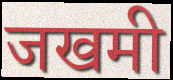
जखमी